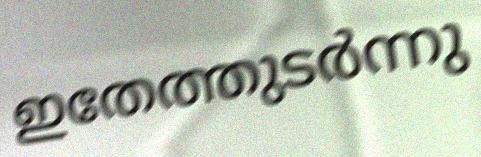
ഇതേത്തുടർന്നു